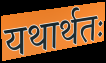
यथार्थतः